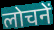
लोचनें